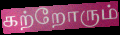
கற்றோரும்